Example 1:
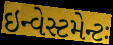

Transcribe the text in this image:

ઇન્વેસ્ટમેન્ટઃ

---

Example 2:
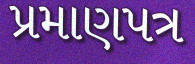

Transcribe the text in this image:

પ્રમાણપત્ર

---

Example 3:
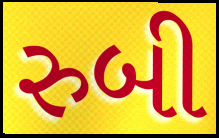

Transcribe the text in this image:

રુબી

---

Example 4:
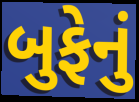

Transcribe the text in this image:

બુફેનું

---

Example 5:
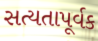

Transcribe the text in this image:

સત્યતાપૂર્વક